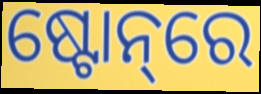
ଷ୍ଟୋନ୍‌ରେ